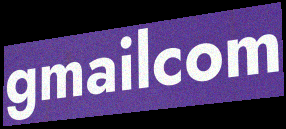
gmailcom